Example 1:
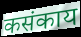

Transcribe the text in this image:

कसंकाय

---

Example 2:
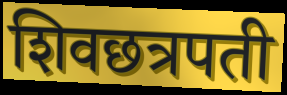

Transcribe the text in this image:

शिवछत्रपती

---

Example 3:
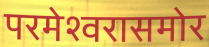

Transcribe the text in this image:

परमेश्वरासमोर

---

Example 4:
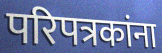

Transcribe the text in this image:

परिपत्रकांना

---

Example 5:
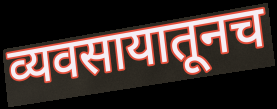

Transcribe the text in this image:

व्यवसायातूनच